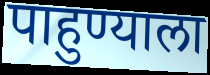
पाहुण्याला